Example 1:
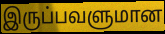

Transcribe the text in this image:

இருப்பவளுமான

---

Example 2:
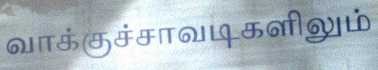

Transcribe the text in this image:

வாக்குச்சாவடிகளிலும்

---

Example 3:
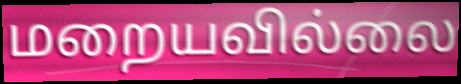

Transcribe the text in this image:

மறையவில்லை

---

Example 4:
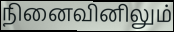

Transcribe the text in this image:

நினைவினிலும்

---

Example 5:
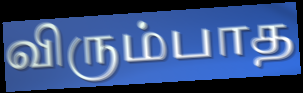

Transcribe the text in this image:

விரும்பாத